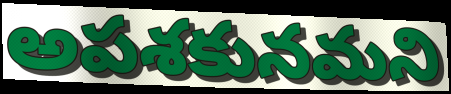
అపశకునమని